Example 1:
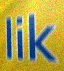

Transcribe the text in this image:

lik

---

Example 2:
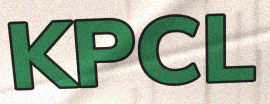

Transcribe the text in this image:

KPCL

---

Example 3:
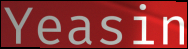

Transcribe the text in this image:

Yeasin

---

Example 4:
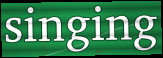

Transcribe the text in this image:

singing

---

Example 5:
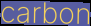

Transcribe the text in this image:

carbon